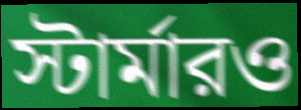
স্টার্মারও